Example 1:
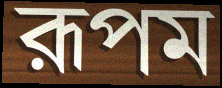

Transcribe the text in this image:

রূপম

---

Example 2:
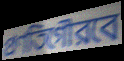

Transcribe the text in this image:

প্রণতিগৌরবে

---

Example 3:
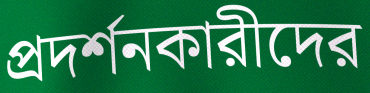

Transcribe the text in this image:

প্রদর্শনকারীদের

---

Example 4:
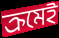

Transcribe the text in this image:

ক্রমেই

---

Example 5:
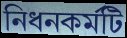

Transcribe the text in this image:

নিধনকর্মটি